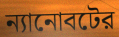
ন্যানোবটের